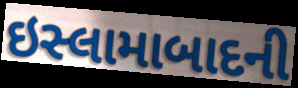
ઇસ્લામાબાદની